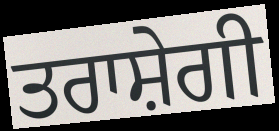
ਤਰਾਸ਼ੇਗੀ